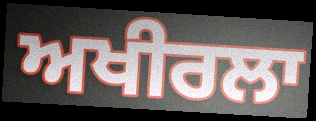
ਅਖੀਰਲਾ